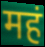
महं